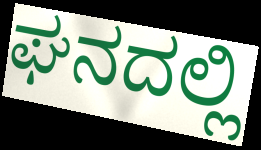
ಘನದಲ್ಲಿ